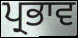
ਪ੍ਰਭਾਵ